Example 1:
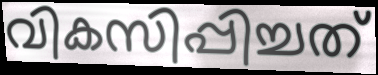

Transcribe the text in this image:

വികസിപ്പിച്ചത്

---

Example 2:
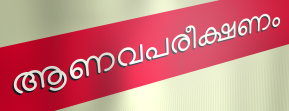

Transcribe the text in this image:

ആണവപരീക്ഷണം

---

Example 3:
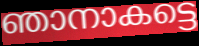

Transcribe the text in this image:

ഞാനാകട്ടെ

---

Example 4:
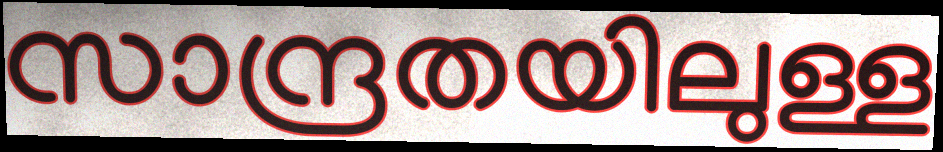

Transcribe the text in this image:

സാന്ദ്രതയിലുള്ള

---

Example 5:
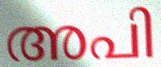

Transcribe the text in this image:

അപി